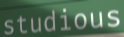
studious